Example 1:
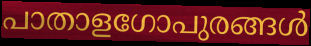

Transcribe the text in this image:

പാതാളഗോപുരങ്ങൾ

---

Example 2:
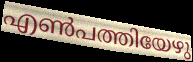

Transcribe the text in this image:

എൺപത്തിയേഴു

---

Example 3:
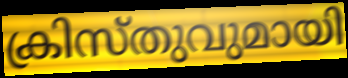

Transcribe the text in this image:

ക്രിസ്തുവുമായി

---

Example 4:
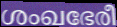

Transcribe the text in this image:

ശംഖഭേരീ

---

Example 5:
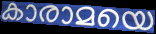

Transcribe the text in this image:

കാരാമയെ